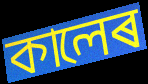
কালেৰ